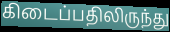
கிடைப்பதிலிருந்து